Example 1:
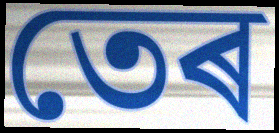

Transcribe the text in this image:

তেৰ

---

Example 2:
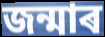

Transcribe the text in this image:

জন্মাৰ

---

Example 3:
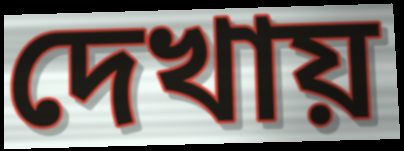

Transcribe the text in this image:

দেখায়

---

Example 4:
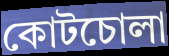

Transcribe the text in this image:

কোটচোলা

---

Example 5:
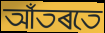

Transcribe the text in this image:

আঁতৰতে